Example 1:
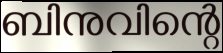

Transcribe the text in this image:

ബിനുവിന്റെ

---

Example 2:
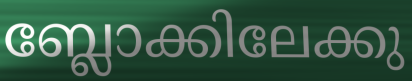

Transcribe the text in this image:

ബ്ലോക്കിലേക്കു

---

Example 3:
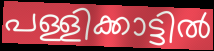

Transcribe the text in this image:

പള്ളിക്കാട്ടിൽ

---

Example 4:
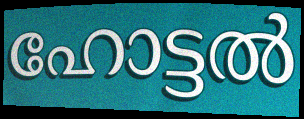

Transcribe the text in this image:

ഹോട്ടൽ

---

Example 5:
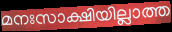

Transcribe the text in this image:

മനഃസാക്ഷിയില്ലാത്ത